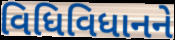
વિધિવિધાનને